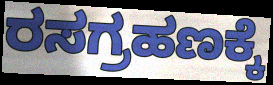
ರಸಗ್ರಹಣಕ್ಕೆ